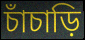
চাঁচাড়ি